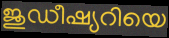
ജുഡീഷ്യറിയെ